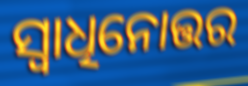
ସ୍ୱାଧିନୋତ୍ତର